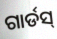
ଗାର୍ଡସ୍